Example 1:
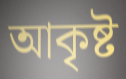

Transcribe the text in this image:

আকৃষ্ট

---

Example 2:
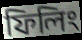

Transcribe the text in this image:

ফিলিং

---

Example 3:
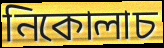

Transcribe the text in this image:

নিকোলাচ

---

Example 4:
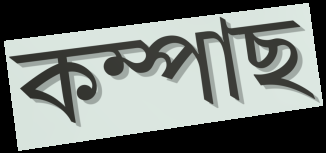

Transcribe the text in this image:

কম্পাছ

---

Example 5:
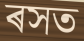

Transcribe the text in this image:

ৰসত